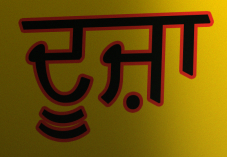
ਦੂਜ਼ਾ